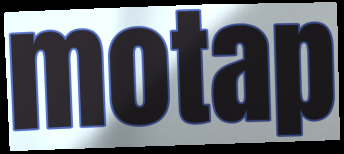
motap